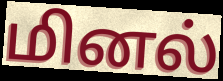
மினல்